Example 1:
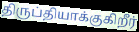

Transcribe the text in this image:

திருப்தியாக்குகிறீர்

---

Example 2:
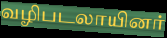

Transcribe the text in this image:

வழிபடலாயினர்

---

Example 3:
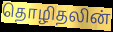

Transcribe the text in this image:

தொழிதலின்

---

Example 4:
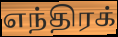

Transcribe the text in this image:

எந்திரக்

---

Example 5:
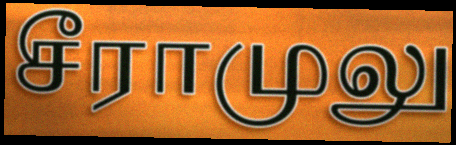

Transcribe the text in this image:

சீராமுலு